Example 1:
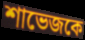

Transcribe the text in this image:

শাভেজকে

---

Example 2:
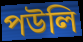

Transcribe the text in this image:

পউলি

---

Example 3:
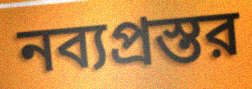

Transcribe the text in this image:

নব্যপ্রস্তর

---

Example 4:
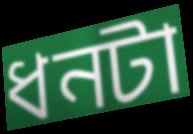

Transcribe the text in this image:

ধনটা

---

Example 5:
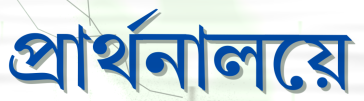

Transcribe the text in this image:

প্রার্থনালয়ে